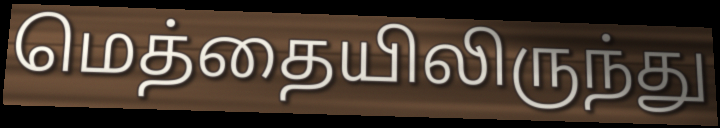
மெத்தையிலிருந்து